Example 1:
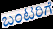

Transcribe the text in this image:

ಬಂಟರಿಗೆ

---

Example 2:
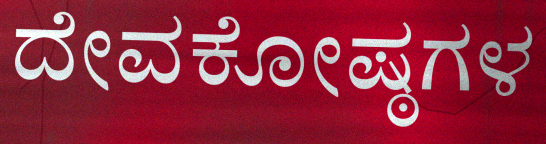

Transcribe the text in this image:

ದೇವಕೋಷ್ಠಗಳ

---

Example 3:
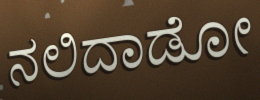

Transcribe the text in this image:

ನಲಿದಾಡೋ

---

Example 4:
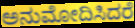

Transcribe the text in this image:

ಅನುಮೋದಿಸಿದರೆ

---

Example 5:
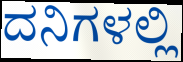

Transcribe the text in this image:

ದನಿಗಳಲ್ಲಿ